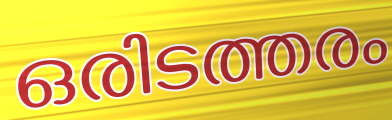
ഒരിടത്തരം